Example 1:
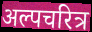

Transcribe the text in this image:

अल्पचरित्र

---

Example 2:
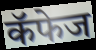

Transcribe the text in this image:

कॅफेज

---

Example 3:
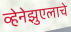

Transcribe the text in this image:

व्हेनेझुएलाचे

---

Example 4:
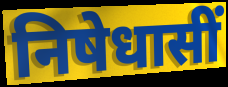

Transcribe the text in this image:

निषेधासीं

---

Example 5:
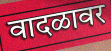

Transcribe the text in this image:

वादळावर